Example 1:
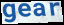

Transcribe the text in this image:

gear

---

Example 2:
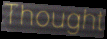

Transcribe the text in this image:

Thought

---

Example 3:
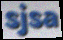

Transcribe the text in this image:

sjsa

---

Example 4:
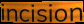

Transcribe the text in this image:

incision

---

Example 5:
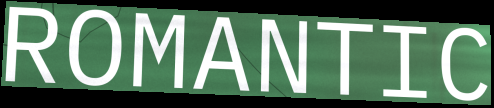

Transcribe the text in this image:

ROMANTIC